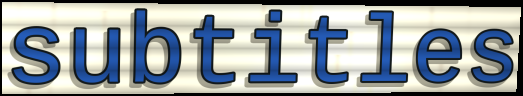
subtitles